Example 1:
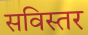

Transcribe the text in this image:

सविस्तर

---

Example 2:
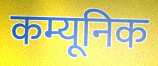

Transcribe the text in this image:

कम्यूनिक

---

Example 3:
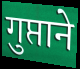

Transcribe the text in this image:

गुप्ताने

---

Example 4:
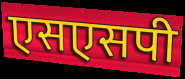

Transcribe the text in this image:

एसएसपी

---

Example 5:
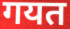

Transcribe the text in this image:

गयत